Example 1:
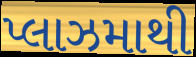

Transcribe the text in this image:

પ્લાઝમાથી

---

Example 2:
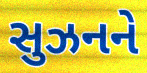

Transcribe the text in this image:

સુઝનને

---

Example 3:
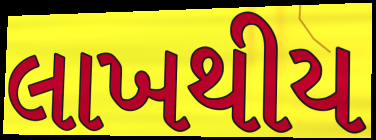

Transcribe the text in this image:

લાખથીય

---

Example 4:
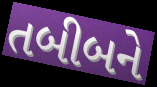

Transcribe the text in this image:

તબીબને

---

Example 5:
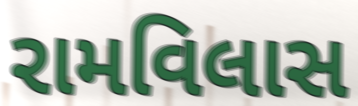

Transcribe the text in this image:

રામવિલાસ